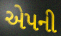
એપની